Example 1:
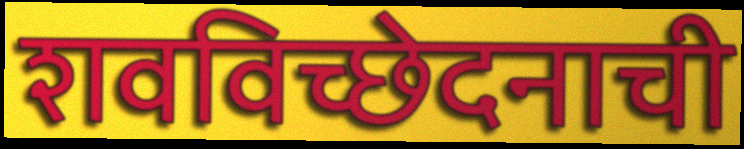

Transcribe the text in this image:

शवविच्छेदनाची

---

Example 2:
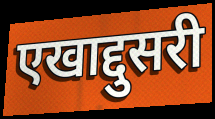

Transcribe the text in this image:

एखाद्दुसरी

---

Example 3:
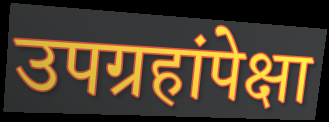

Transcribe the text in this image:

उपग्रहांपेक्षा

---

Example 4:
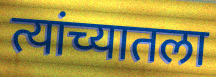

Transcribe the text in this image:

त्यांच्यातला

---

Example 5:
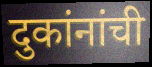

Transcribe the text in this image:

दुकांनांची